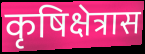
कृषिक्षेत्रास